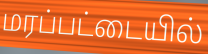
மரப்பட்டையில்